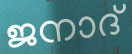
ജനാദ്